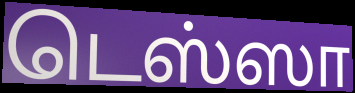
டெஸ்ஸா